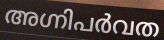
അഗ്നിപർവത